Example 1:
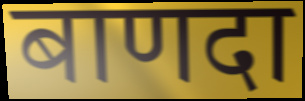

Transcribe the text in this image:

बाणदा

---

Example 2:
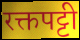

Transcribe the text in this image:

रक्तपट्टी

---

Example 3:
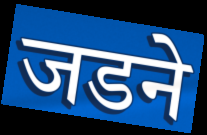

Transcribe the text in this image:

जडने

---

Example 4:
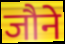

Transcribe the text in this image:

जौने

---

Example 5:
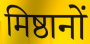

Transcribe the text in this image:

मिष्ठानों